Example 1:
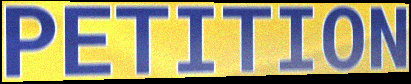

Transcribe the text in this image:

PETITION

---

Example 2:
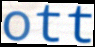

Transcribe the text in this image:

ott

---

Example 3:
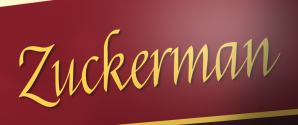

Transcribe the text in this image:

Zuckerman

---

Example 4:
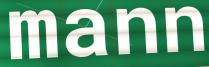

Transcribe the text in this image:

mann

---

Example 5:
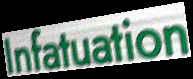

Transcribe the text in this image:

Infatuation